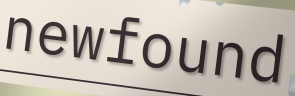
newfound